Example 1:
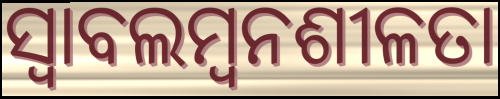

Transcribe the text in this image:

ସ୍ୱାବଲମ୍ବନଶୀଳତା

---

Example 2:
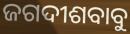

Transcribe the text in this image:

ଜଗଦୀଶବାବୁ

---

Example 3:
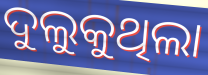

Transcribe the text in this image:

ଦୁଲୁକୁଥିଲା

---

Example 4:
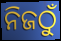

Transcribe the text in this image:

ନିଜଠୁଁ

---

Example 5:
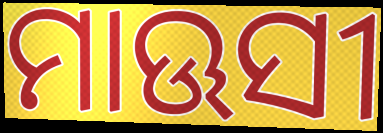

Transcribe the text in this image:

ମାଊସୀ